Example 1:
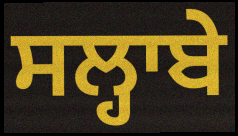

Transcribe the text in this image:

ਸਲ੍ਹਾਬੇ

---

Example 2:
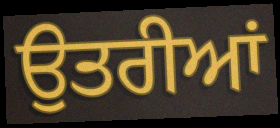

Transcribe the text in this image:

ਉਤਰੀਆਂ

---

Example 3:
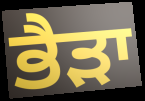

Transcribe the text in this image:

ਭੈੜਾ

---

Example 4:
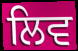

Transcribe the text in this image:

ਲਿਵ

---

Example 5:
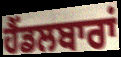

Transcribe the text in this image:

ਹੈਂਡਲਬਾਰਾਂ